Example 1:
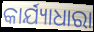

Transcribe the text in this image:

କାର୍ଯ୍ୟାଧାରା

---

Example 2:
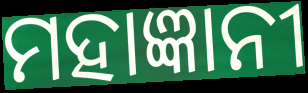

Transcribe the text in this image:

ମହାଜ୍ଞାନୀ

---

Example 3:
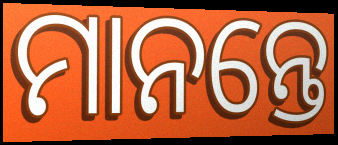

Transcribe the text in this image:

ମାନନ୍ତେ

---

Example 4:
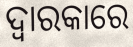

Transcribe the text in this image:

ଦ୍ବାରକାରେ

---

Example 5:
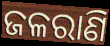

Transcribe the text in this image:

ଜଳରାଣି